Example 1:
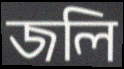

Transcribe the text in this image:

জলি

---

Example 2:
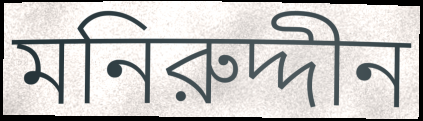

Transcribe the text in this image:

মনিরুদ্দীন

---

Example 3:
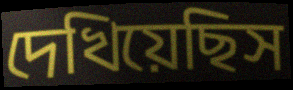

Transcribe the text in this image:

দেখিয়েছিস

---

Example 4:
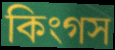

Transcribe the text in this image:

কিংগস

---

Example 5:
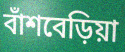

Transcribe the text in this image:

বাঁশবেড়িয়া